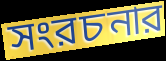
সংরচনার